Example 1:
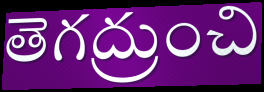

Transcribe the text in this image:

తెగద్రుంచి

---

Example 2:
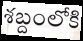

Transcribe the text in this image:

శబ్దంలోకి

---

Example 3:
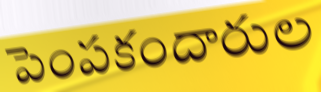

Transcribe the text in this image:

పెంపకందారుల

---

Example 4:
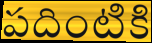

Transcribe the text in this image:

పదింటికి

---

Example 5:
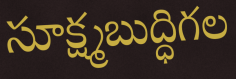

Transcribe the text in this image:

సూక్ష్మబుద్ధిగల